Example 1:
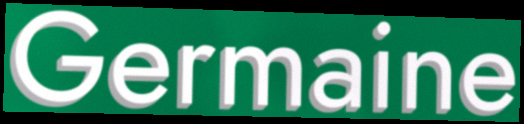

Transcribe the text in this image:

Germaine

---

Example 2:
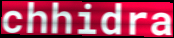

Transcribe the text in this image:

chhidra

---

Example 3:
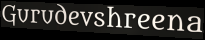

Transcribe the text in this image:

Gurudevshreena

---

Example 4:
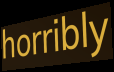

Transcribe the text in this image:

horribly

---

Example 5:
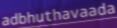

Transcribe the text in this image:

adbhuthavaada